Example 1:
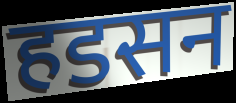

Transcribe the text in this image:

हडसन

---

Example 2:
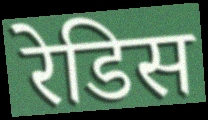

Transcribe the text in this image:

रेडिस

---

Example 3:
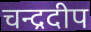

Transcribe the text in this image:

चन्द्रदीप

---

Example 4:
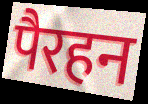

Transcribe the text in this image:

पैरहन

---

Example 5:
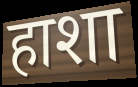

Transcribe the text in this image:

हाशा